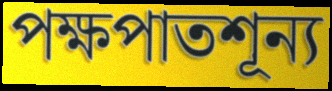
পক্ষপাতশূন্য